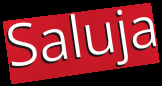
Saluja